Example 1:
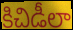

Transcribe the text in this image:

కిచిడీలా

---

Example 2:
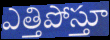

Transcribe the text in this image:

ఎత్తిపోస్తూ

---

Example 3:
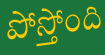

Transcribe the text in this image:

పోస్తోంది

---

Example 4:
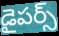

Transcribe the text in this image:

డైపర్స్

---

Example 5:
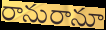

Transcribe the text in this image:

రానురానూ